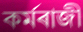
কৰ্মৰাজী